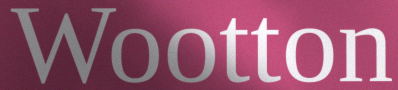
Wootton